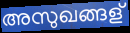
അസുഖങ്ങള്